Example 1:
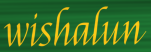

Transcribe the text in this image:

wishalun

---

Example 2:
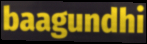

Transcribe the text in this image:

baagundhi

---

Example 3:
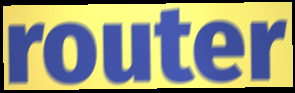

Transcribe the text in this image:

router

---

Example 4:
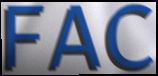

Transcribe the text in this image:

FAC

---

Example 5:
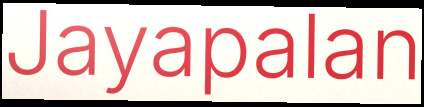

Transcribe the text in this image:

Jayapalan